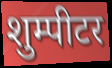
शुम्पीटर